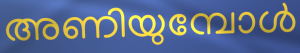
അണിയുമ്പോൾ